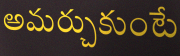
అమర్చుకుంటే